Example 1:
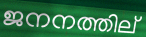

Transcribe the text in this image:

ജനനത്തില്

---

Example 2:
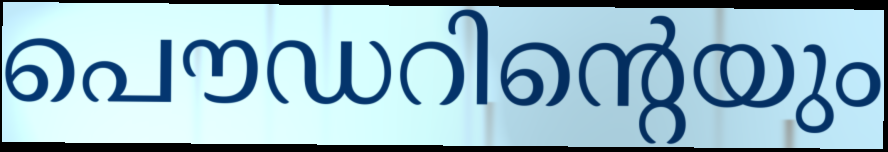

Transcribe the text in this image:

പൌഡറിന്റെയും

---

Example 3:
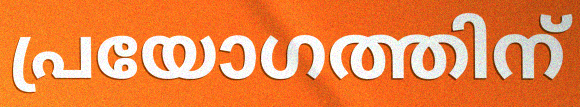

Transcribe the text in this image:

പ്രയോഗത്തിന്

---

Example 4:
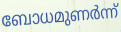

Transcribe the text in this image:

ബോധമുണർന്ന്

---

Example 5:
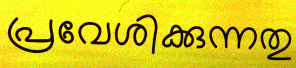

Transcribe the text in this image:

പ്രവേശിക്കുന്നതു